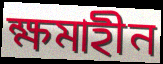
ক্ষমাহীন